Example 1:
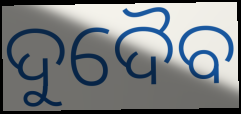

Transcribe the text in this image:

ଦୁଦୈବ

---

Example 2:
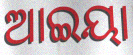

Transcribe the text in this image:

ଆଇୟା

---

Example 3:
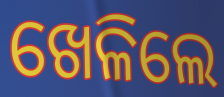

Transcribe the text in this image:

ଖେଳିଲେ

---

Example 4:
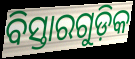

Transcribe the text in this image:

ବିସ୍ତାରଗୁଡ଼ିକ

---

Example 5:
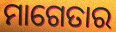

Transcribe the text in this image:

ମାଗେତାର